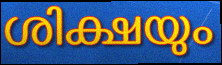
ശിക്ഷയും